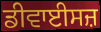
ਡੀਵਾਈਸਜ਼